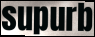
supurb